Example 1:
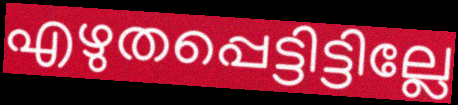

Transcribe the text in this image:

എഴുതപ്പെട്ടിട്ടില്ലേ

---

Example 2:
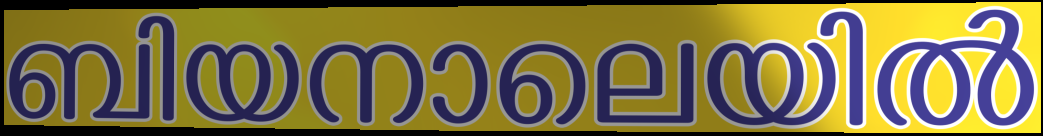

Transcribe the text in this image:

ബിയനാലെയിൽ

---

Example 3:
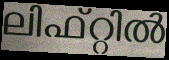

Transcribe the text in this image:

ലിഫ്റ്റിൽ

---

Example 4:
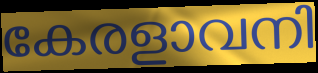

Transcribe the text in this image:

കേരളാവനി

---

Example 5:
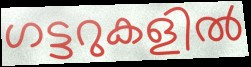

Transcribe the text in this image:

ഗട്ടറുകളിൽ